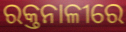
ରକ୍ତନାଳୀରେ